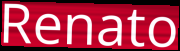
Renato